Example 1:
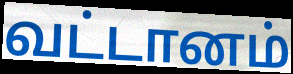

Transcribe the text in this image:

வட்டானம்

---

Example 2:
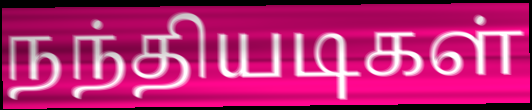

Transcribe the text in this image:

நந்தியடிகள்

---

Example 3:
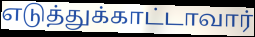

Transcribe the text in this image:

எடுத்துக்காட்டாவார்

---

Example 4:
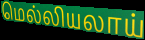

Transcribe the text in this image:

மெல்லியலாய்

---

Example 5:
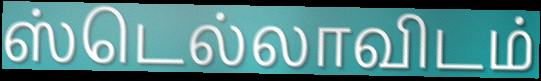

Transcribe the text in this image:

ஸ்டெல்லாவிடம்